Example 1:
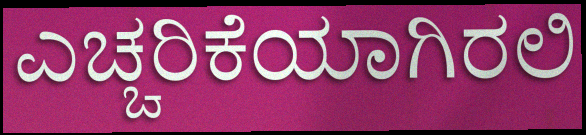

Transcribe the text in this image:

ಎಚ್ಚರಿಕೆಯಾಗಿರಲಿ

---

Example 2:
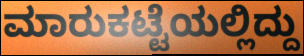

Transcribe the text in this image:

ಮಾರುಕಟ್ಟೆಯಲ್ಲಿದ್ದು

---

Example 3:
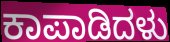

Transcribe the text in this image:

ಕಾಪಾಡಿದಳು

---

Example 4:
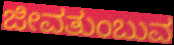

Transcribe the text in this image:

ಜೀವತುಂಬುವ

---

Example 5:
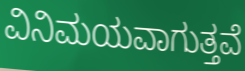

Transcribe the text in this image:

ವಿನಿಮಯವಾಗುತ್ತವೆ